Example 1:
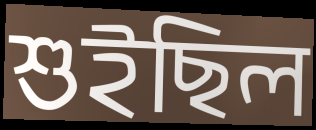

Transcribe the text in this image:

শুইছিল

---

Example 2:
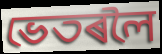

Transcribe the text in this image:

ভেতৰলৈ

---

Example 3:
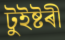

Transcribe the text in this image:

টুইষ্টৰী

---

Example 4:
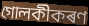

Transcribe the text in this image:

গোলকীকৰণ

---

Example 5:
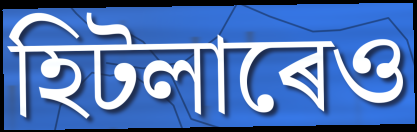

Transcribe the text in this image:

হিটলাৰেও